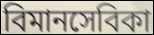
বিমানসেবিকা